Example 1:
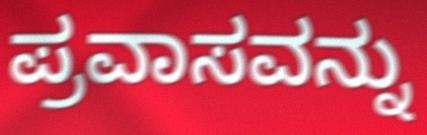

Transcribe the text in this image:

ಪ್ರವಾಸವನ್ನು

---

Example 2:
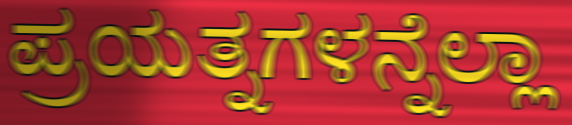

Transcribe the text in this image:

ಪ್ರಯತ್ನಗಳನ್ನೆಲ್ಲಾ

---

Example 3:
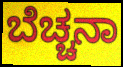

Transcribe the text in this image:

ಬೆಚ್ಚನಾ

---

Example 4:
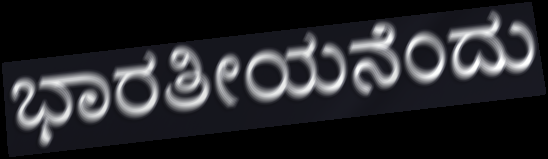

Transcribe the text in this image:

ಭಾರತೀಯನೆಂದು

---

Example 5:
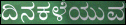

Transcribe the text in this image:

ದಿನಕಳೆಯುವ